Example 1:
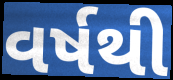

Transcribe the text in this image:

વર્ષથી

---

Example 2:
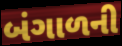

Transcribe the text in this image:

બંગાળની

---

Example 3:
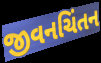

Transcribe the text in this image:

જીવનચિંતન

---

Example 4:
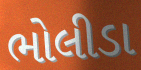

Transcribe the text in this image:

ભોલીડા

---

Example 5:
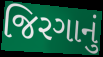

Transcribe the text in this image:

જિરગાનું